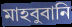
মাহবুবানি